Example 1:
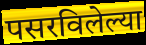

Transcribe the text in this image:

पसरविलेल्या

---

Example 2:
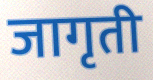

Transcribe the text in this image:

जागृती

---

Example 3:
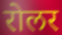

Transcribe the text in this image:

रोलर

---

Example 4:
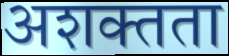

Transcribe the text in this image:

अशक्‍तता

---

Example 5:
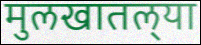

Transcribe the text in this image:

मुलखातल्या